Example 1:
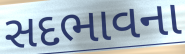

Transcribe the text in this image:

સદભાવના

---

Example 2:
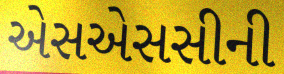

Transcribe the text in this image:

એસએસસીની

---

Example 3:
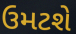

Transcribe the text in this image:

ઉમટશે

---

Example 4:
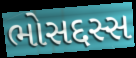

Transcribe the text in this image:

ભોસદ્દસ્સ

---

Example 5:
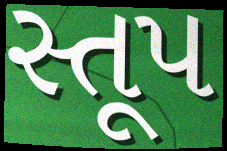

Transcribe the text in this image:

સ્તૂપ